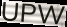
UPW